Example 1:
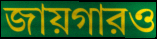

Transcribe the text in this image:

জায়গারও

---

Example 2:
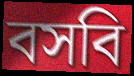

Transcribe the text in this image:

বসবি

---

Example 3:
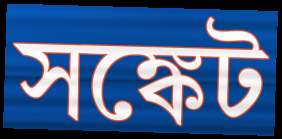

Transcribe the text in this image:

সঙ্কেট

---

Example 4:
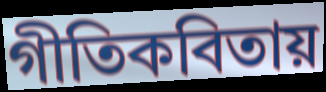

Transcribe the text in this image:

গীতিকবিতায়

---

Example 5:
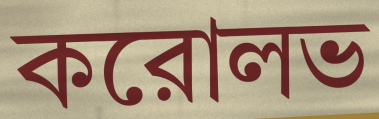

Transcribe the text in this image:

করোলভ